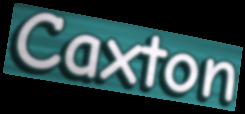
Caxton